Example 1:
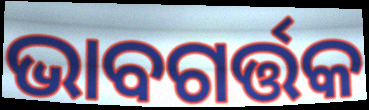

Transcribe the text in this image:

ଭାବଗର୍ତ୍ତକ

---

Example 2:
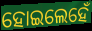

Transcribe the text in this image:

ହୋଇଲେହେଁ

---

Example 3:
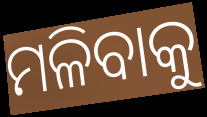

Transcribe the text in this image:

ମଳିବାକୁ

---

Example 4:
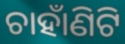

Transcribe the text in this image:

ଚାହାଁଣିଟି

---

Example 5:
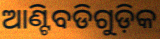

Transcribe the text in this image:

ଆଣ୍ଟିବଡିଗୁଡ଼ିକ